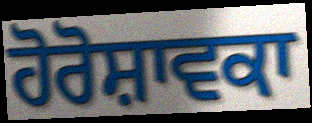
ਹੋਰੋਸ਼ਾਵਕਾ